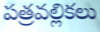
పత్రవల్లికలు